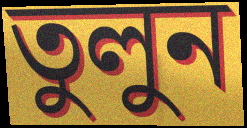
তুলুন